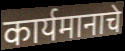
कार्यमानाचे